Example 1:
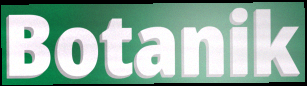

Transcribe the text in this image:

Botanik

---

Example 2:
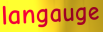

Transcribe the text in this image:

langauge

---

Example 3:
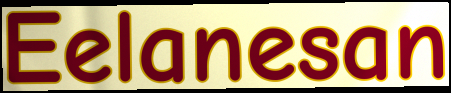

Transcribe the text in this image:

Eelanesan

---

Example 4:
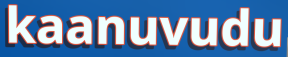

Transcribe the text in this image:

kaanuvudu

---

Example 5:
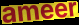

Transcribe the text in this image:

ameer